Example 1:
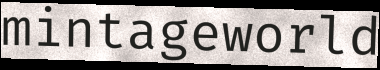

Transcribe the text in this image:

mintageworld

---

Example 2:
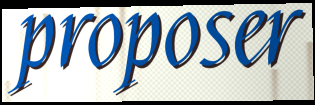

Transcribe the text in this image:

proposer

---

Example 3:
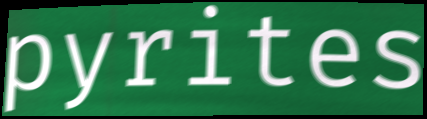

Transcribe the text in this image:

pyrites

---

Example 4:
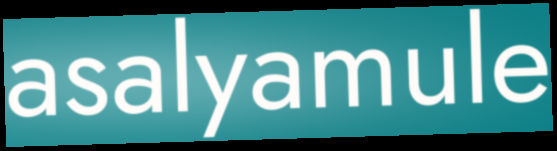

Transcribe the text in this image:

asalyamule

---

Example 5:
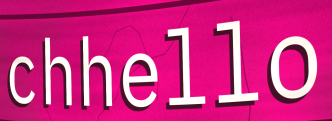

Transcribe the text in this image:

chhello